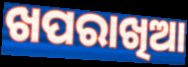
ଖପରାଖିଆ